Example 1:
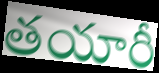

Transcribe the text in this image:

తయారీ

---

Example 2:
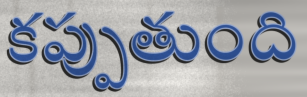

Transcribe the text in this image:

కప్పుతుంది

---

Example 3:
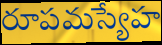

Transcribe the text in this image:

రూపమస్యేహ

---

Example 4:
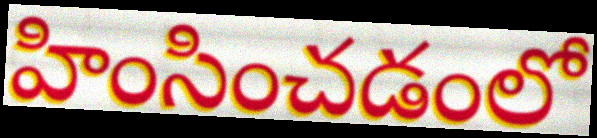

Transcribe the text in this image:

హింసించడంలో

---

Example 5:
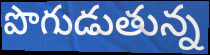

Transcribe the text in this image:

పొగుడుతున్న